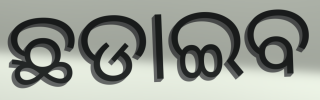
ଛଡାଇବ